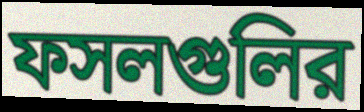
ফসলগুলির